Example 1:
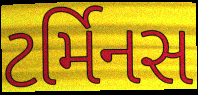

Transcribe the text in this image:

ટર્મિનસ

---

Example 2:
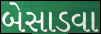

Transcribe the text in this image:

બેસાડવા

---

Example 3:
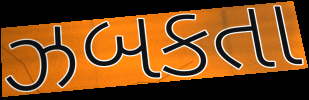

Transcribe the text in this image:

ઝબકતા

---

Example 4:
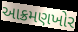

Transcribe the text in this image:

આક્રમણખોર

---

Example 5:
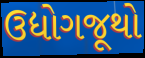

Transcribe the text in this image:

ઉદ્યોગજૂથો